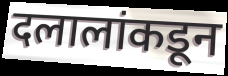
दलालांकडून